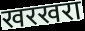
खरखरा